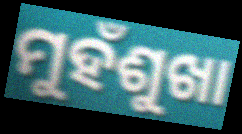
ମୁହଁଶୁଖା